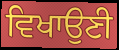
ਵਿਖਾਉਣੀ